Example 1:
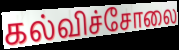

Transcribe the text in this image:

கல்விச்சோலை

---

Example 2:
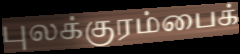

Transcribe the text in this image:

புலக்குரம்பைக்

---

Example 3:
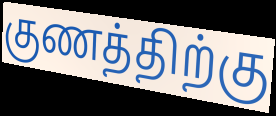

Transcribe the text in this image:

குணத்திற்கு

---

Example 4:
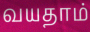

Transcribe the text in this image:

வயதாம்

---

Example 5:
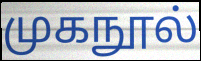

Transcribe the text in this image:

முகநூல்